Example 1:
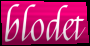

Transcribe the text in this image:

blodet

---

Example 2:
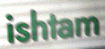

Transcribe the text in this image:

ishtam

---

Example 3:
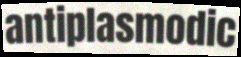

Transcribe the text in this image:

antiplasmodic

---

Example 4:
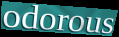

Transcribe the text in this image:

odorous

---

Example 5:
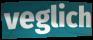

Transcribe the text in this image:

veglich